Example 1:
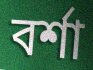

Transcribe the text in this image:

বর্শা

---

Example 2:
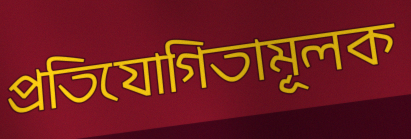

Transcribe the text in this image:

প্রতিযোগিতামূলক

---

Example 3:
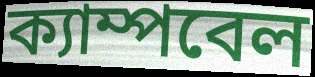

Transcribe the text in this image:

ক্যাম্পবেল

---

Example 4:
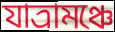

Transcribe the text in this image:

যাত্রামঞ্চে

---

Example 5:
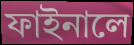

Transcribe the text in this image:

ফাইনালে